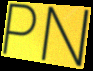
PN